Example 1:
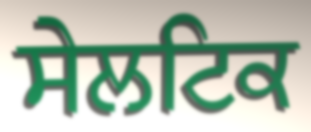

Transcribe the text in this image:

ਸੇਲਟਿਕ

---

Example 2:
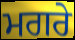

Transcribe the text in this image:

ਮਗਰੇ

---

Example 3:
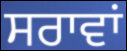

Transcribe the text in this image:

ਸਰਾਵਾਂ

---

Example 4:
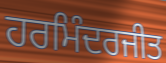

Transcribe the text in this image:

ਹਰਮਿੰਦਰਜੀਤ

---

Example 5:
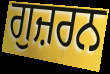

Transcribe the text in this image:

ਗੁਜ਼ਰਨ